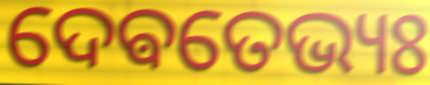
ଦେଵତେଭ୍ୟଃ